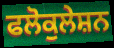
ਫਲੋਕੁਲੇਸ਼ਨ